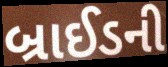
બ્રાઈડની